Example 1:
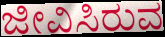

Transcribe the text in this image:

ಜೀವಿಸಿರುವ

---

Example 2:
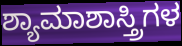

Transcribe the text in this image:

ಶ್ಯಾಮಾಶಾಸ್ತ್ರಿಗಳ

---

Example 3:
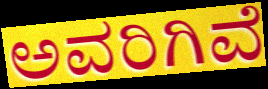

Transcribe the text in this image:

ಅವರಿಗಿವೆ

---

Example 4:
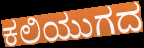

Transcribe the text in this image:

ಕಲಿಯುಗದ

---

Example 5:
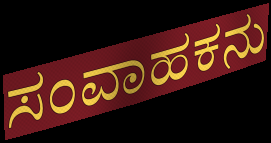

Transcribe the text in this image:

ಸಂವಾಹಕನು